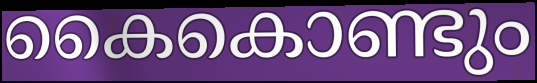
കൈകൊണ്ടും